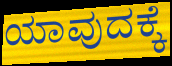
ಯಾವುದಕ್ಕೆ